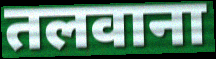
तलवाना